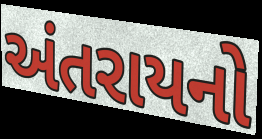
અંતરાયનો